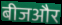
बीजऔर